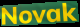
Novak